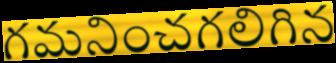
గమనించగలిగిన